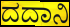
ದದಾನಿ